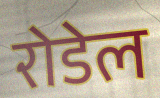
रोडेल